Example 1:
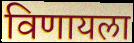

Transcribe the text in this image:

विणायला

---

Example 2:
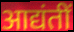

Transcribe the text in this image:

आद्यंतीं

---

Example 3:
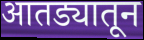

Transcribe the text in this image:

आतड्यातून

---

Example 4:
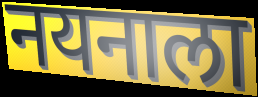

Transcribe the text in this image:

नयनाला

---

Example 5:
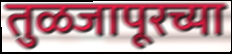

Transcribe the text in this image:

तुळजापूरच्या